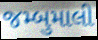
જમ્બુમાલી